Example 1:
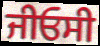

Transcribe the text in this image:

ਜੀਓਸੀ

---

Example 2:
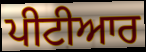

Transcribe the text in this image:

ਪੀਟੀਆਰ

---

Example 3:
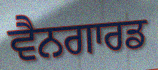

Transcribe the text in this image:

ਵੈਨਗਾਰਡ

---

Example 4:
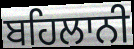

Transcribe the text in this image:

ਬਹਿਲਾਨੀ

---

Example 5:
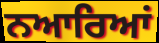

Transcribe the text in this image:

ਨਆਰਿਆਂ